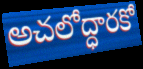
అచలోద్ధారకో